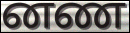
னண